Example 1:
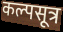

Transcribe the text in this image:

कल्पसूत्र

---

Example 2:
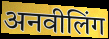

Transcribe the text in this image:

अनवीलिंग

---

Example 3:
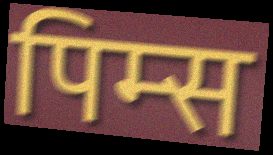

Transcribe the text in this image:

पिम्स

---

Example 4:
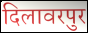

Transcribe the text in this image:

दिलावरपुर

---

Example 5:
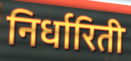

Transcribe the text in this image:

निर्धारिती